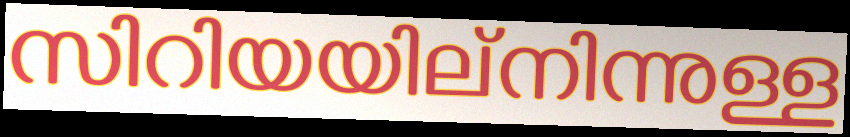
സിറിയയില്നിന്നുള്ള